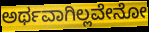
ಅರ್ಥವಾಗಿಲ್ಲವೇನೋ